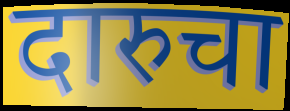
दारुचा